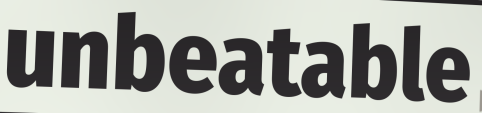
unbeatable